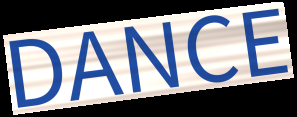
DANCE